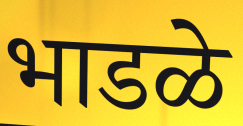
भाडळे